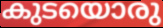
കുടയൊരു